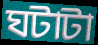
ঘটাটা